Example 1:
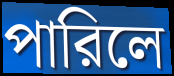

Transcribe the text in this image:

পারিলে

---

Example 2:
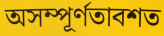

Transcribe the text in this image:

অসম্পূর্ণতাবশত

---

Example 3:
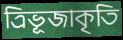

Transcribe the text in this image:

ত্রিভূজাকৃতি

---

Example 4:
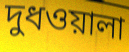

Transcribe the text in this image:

দুধওয়ালা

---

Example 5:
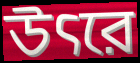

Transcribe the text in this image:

উৎরে